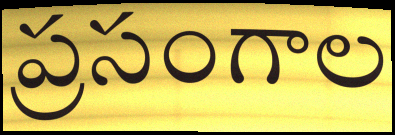
ప్రసంగాల